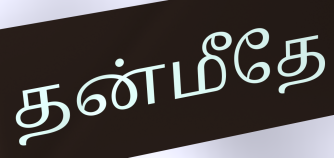
தன்மீதே